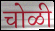
चोळी